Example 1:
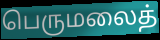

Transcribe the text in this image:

பெருமலைத்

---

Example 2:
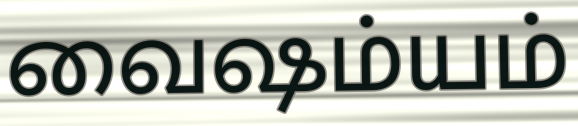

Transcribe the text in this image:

வைஷம்யம்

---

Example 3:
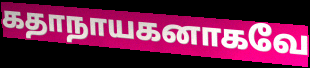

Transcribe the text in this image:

கதாநாயகனாகவே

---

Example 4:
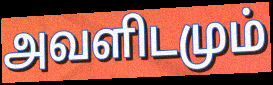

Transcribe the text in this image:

அவளிடமும்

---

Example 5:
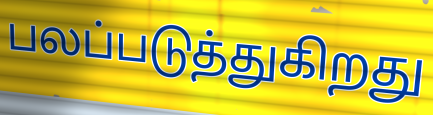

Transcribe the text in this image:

பலப்படுத்துகிறது